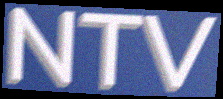
NTV